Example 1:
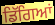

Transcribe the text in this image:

ਡਿੱਗਿਆਂ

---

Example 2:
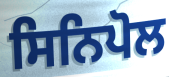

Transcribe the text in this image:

ਸਿਨਿਪੋਲ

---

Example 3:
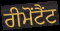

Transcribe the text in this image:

ਰੀਮੋਂਟੈਂਟ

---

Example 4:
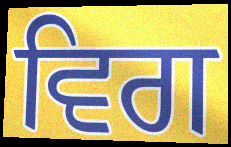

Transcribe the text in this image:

ਵਿਗ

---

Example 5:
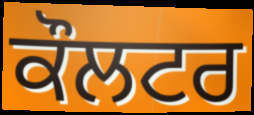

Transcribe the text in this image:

ਕੌਲਟਰ